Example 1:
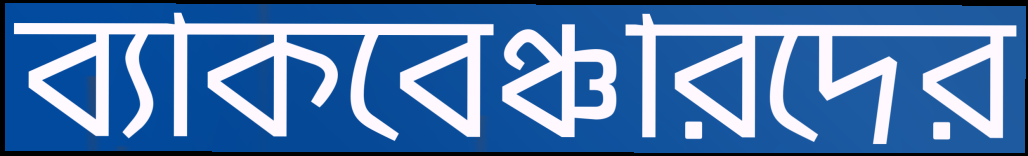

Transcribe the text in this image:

ব্যাকবেঞ্চারদের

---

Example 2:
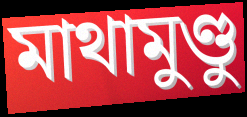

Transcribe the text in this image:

মাথামুণ্ডু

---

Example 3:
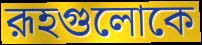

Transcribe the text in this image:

রূহগুলোকে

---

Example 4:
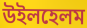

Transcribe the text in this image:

উইলহেলম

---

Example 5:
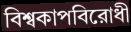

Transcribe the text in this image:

বিশ্বকাপবিরোধী